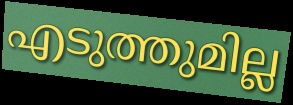
എടുത്തുമില്ല